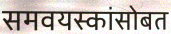
समवयस्कांसोबत